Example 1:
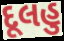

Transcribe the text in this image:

દૂલહુ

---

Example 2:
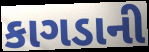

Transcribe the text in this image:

કાગડાની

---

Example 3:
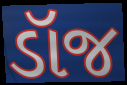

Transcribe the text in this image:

ડૉજ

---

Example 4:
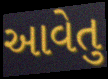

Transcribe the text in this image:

આવેતુ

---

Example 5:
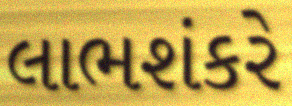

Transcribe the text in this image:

લાભશંકરે